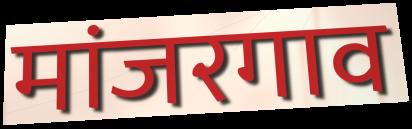
मांजरगाव